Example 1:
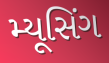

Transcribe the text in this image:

મ્યૂસિંગ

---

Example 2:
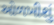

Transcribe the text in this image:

ઓળખીશું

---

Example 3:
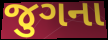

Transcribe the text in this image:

જુગના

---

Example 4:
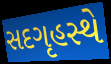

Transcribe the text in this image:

સદગૃહસ્થે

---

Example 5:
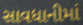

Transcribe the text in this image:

સાવધાનીમાં